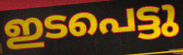
ഇടപെട്ടു